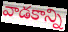
వాడకాన్ని